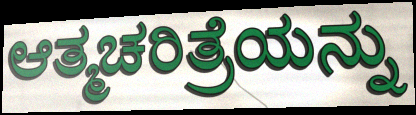
ಆತ್ಮಚರಿತ್ರೆಯನ್ನು